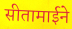
सीतामाईने